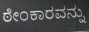
ಠೇಂಕಾರವನ್ನು